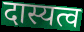
दास्यत्व